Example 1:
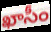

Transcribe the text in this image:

ఖాసీం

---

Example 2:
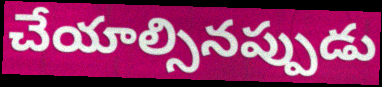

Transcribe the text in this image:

చేయాల్సినప్పుడు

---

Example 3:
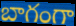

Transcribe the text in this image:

బాగంగా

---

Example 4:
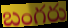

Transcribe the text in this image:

బంగరు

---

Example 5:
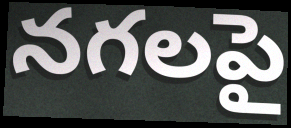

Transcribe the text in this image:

నగలపై